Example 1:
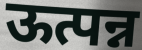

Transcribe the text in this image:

ऊत्पन्न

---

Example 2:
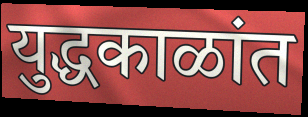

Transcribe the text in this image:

युद्धकाळांत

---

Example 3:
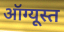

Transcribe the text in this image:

ऑग्यूस्त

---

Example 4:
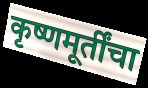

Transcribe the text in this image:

कृष्णमूर्तींचा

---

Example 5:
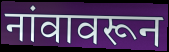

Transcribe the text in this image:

नांवावरून